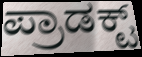
ಪ್ರಾಡಕ್ಟ್